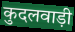
कुदलवाड़ी